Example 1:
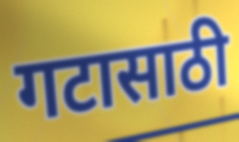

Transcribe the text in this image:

गटासाठी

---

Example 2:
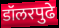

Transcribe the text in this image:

डॉलरपुढे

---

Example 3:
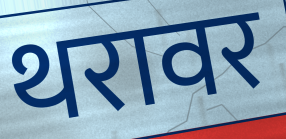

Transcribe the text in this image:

थरावर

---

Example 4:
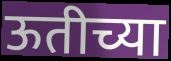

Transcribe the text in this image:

ऊतीच्या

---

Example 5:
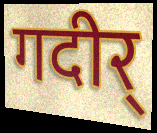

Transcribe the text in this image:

गदीर्